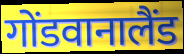
गोंडवानालैंड